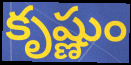
కృష్ణుం